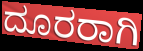
ದೂರರಾಗಿ